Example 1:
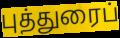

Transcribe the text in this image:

புத்துரைப்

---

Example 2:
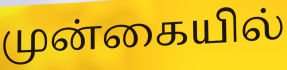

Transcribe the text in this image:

முன்கையில்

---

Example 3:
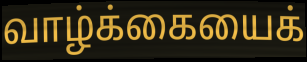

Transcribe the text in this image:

வாழ்க்கையைக்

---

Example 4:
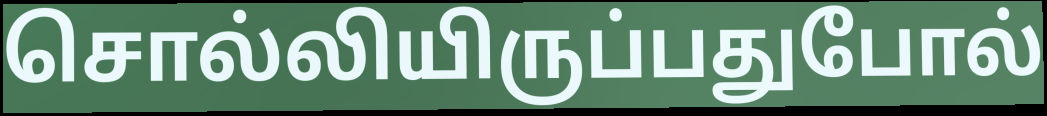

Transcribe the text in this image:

சொல்லியிருப்பதுபோல்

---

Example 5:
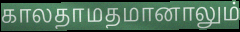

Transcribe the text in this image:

காலதாமதமானாலும்